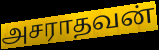
அசராதவன்